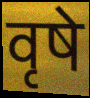
वृषे